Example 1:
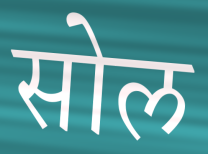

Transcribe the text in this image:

सोल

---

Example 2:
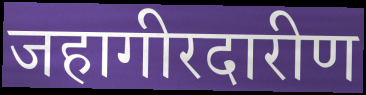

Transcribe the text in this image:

जहागीरदारीण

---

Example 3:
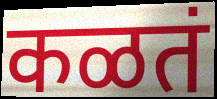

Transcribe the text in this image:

कळतं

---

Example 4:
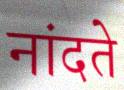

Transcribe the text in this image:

नांदते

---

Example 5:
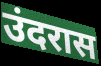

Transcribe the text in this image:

उंदरास